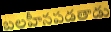
బలహీనపడతాడు